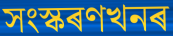
সংস্কৰণখনৰ